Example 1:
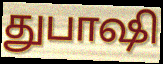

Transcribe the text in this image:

துபாஷி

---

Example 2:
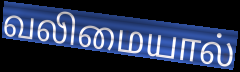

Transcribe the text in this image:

வலிமையால்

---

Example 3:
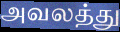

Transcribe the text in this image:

அவலத்து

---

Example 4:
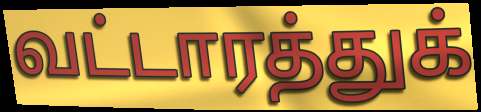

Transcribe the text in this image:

வட்டாரத்துக்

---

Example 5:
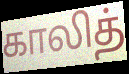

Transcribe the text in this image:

காலித்